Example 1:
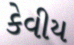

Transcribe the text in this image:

કેવીય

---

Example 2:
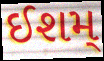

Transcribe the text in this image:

ઈશમ્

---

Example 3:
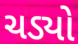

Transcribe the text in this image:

ચડ્યો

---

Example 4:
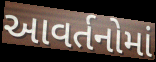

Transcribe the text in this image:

આવર્તનોમાં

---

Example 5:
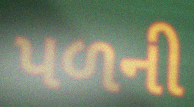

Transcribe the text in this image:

પળની